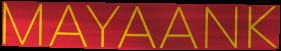
MAYAANK